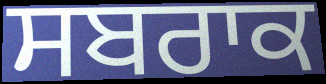
ਸਬਰਾਕ